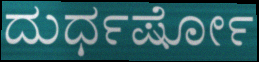
ದುರ್ಧರ್ಷೋ